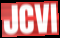
JCVI